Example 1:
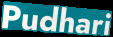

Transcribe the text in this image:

Pudhari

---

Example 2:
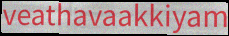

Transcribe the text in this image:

veathavaakkiyam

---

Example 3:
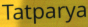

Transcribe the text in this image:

Tatparya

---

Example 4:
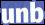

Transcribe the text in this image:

unb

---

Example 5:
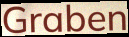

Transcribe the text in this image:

Graben